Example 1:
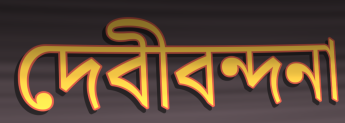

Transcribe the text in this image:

দেবীবন্দনা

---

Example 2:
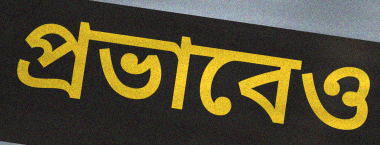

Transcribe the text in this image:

প্রভাবেও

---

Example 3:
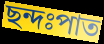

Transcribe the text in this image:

ছন্দঃপাত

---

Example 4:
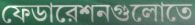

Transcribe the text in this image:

ফেডারেশনগুলোতে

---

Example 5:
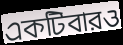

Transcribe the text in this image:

একটিবারও